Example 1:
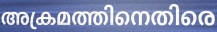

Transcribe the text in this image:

അക്രമത്തിനെതിരെ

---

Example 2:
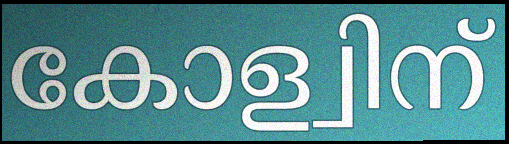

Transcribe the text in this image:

കോള്വിന്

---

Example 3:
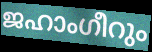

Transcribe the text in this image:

ജഹാംഗീറും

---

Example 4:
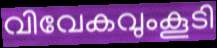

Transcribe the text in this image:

വിവേകവുംകൂടി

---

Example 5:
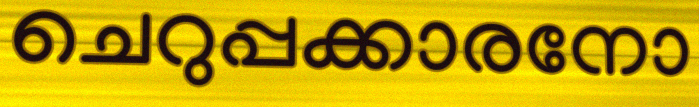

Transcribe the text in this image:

ചെറുപ്പക്കാരനോ